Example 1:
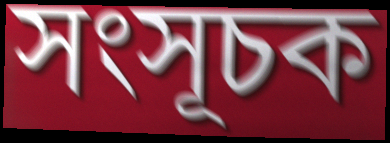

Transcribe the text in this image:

সংসূচক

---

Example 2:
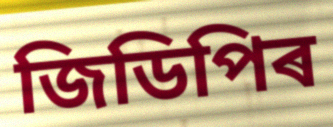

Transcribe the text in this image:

জিডিপিৰ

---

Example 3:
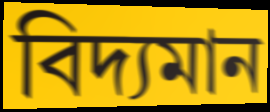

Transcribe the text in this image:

বিদ্যমান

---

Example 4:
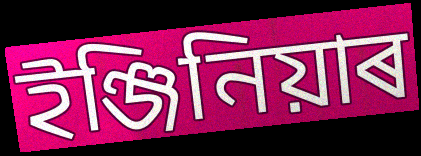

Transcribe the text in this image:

ইঞ্জিনিয়াৰ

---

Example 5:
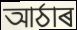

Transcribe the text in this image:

আঠাৰ